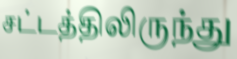
சட்டத்திலிருந்து